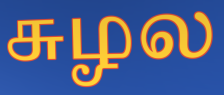
சுழல